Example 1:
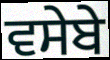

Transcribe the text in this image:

ਵਸੇਬੇ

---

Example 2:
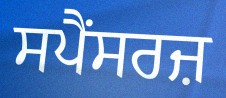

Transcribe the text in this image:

ਸਪੈਂਸਰਜ਼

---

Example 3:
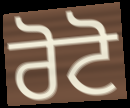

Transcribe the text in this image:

ਰੋਟੋ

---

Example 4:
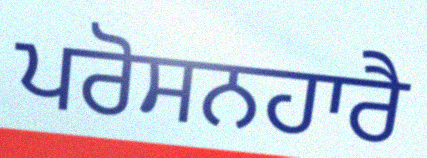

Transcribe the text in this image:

ਪਰੋਸਨਹਾਰੈ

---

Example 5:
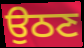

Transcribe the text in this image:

ਉਠਣ